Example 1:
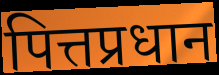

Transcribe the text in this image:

पित्तप्रधान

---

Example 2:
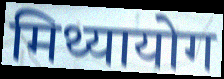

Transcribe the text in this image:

मिथ्यायोग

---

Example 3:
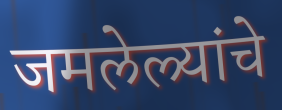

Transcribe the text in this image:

जमलेल्यांचे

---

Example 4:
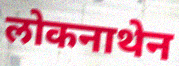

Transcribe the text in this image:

लोकनाथेन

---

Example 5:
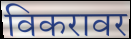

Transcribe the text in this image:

विकरावर